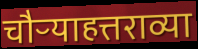
चौऱ्याहत्तराव्या